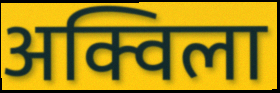
अक्विला